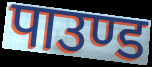
पाउण्‍ड